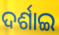
ଦର୍ଶାଇ